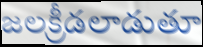
జలక్రీడలాడుతూ